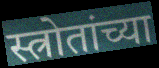
स्त्रोतांच्या